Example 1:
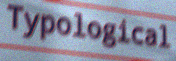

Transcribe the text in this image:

Typological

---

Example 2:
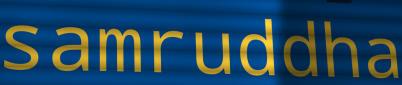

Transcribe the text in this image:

samruddha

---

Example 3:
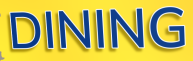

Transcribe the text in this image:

DINING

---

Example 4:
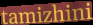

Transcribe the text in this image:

tamizhini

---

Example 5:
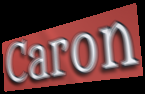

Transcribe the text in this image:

Caron